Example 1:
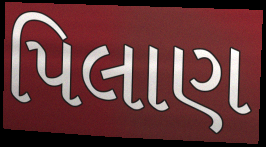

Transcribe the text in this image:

પિલાણ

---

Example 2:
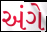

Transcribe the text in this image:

અંગે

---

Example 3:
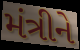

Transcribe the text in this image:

મંત્રીને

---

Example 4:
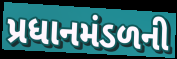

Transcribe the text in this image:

પ્રધાનમંડળની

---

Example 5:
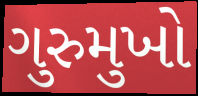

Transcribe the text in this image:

ગુરુમુખો